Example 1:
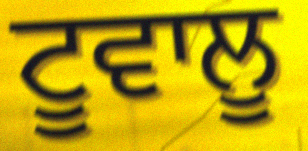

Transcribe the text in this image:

ਟੂਵਾਲੂ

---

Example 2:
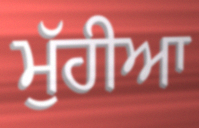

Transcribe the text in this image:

ਮੁੱਹੀਆ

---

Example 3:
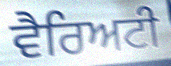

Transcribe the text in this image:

ਵੈਰਿਅਟੀ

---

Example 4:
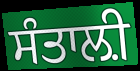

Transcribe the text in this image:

ਸੰਤਾਲ਼ੀ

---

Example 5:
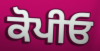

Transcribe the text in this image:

ਕੋਪੀਓ